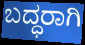
ಬದ್ಧರಾಗಿ